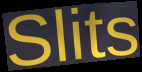
Slits